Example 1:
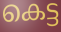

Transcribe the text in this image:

കെട്ട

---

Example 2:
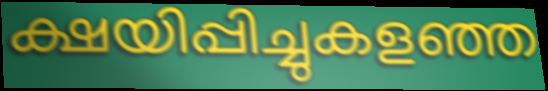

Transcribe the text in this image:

ക്ഷയിപ്പിച്ചുകളഞ്ഞ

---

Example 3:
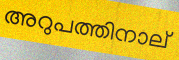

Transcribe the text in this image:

അറുപത്തിനാല്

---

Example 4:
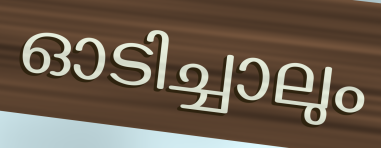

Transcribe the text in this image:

ഓടിച്ചാലും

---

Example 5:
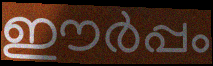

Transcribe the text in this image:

ഈർപ്പം